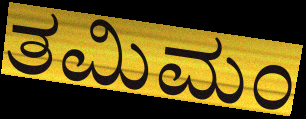
ತಮಿಮಂ